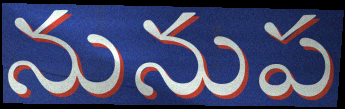
నునుప